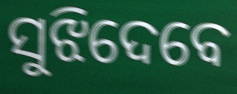
ସୁଝିଦେବେ